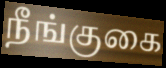
நீங்குகை